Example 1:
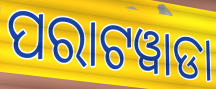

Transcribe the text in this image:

ପରାଟୱାଡା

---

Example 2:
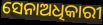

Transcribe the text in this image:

ସେନାଅଧିକାରୀ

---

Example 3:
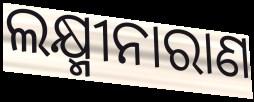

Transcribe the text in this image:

ଲକ୍ଷ୍ମୀନାରାଣ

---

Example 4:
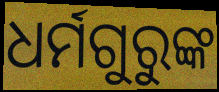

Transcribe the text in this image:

ଧର୍ମଗୁରୁଙ୍କ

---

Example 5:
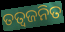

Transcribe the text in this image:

ତତ୍ଵଜନିତ